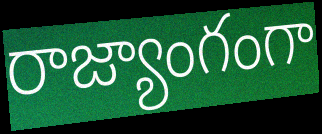
రాజ్యాంగంగా